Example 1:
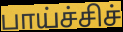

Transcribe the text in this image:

பாய்ச்சிச்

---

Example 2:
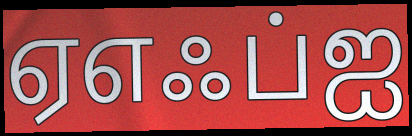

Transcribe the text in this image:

ஏஎஃப்ஐ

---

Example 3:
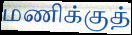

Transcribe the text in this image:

மணிக்குத்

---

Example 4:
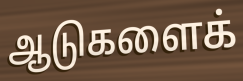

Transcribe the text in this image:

ஆடுகளைக்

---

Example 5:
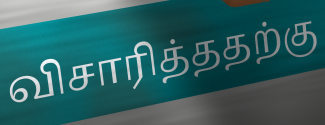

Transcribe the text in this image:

விசாரித்ததற்கு